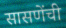
सासणेंची